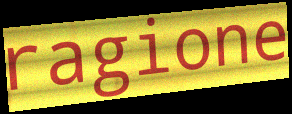
ragione